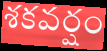
శకవర్షం